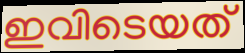
ഇവിടെയത്